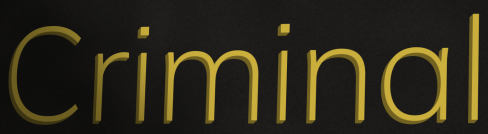
Criminal